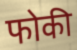
फोकी